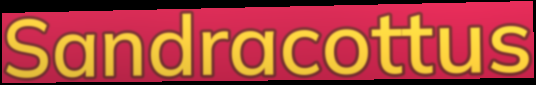
Sandracottus